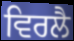
ਵਿਰਲੈ